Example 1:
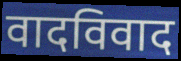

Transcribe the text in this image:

वादविवाद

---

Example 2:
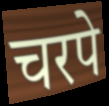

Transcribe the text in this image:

चरपे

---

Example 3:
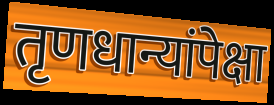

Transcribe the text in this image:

तृणधान्यांपेक्षा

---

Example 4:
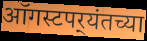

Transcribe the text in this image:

ऑगस्टपर्यंतच्या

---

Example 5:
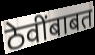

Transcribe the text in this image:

ठेवींबाबत